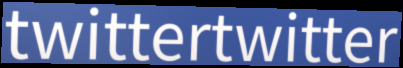
twittertwitter